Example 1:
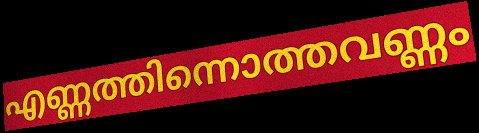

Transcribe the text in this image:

എണ്ണത്തിന്നൊത്തവണ്ണം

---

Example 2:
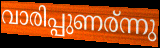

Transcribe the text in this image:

വാരിപ്പുണര്ന്നു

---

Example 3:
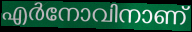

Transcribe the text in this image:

എർനോവിനാണ്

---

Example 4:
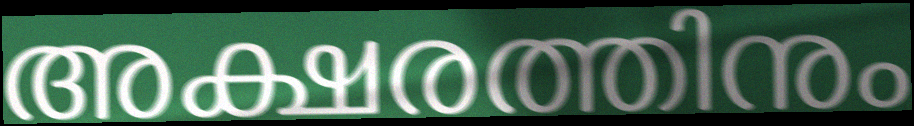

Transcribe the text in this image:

അക്ഷരത്തിനും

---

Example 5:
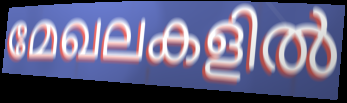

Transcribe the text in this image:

മേഖലകളിൽ